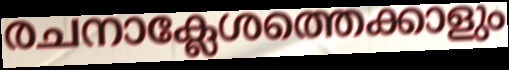
രചനാക്ലേശത്തെക്കാളും